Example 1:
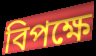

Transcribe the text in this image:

বিপক্ষে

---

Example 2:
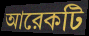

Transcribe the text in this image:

আরেকটি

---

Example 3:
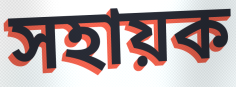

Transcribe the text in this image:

সহায়ক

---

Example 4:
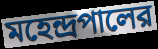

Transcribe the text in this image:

মহেন্দ্রপালের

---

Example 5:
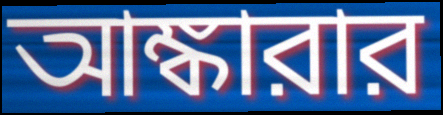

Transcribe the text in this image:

আঙ্কারার